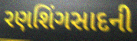
રણશિંગસાદની